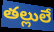
తల్లులే